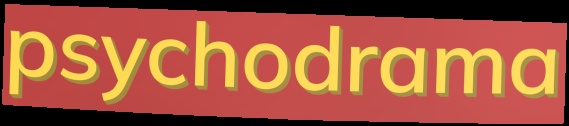
psychodrama